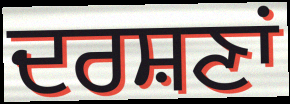
ਦਰਸ਼ਣਾਂ